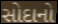
સોદાનો